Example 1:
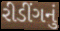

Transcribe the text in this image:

રીડીંગનું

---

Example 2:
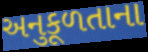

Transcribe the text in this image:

અનુકૂળતાના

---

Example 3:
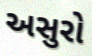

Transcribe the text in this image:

અસુરો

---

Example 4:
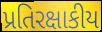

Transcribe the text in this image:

પ્રતિરક્ષાકીય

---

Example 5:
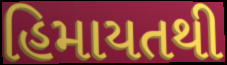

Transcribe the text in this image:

હિમાયતથી